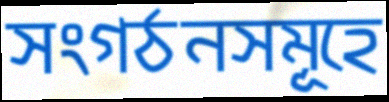
সংগঠনসমূহে